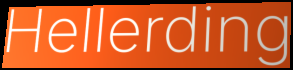
Hellerding